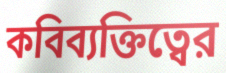
কবিব্যক্তিত্বের